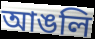
আঙলি